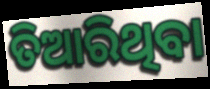
ତିଆରିଥିବା